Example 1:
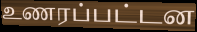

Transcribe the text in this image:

உணரப்பட்டன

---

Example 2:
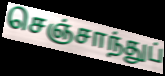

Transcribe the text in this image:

செஞ்சாந்துப்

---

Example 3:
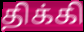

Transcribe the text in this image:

திக்கி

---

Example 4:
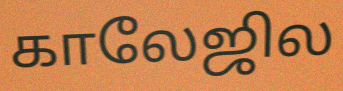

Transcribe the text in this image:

காலேஜில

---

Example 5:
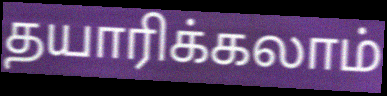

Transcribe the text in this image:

தயாரிக்கலாம்